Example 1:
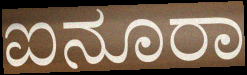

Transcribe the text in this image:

ಐನೂರಾ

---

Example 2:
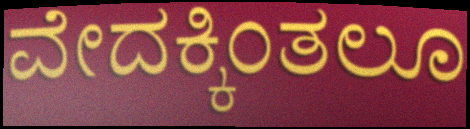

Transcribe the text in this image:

ವೇದಕ್ಕಿಂತಲೂ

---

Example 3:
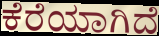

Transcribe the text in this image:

ಕೆರೆಯಾಗಿದೆ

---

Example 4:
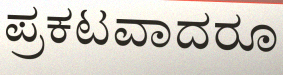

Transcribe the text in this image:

ಪ್ರಕಟವಾದರೂ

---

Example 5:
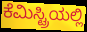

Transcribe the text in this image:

ಕೆಮಿಸ್ಟ್ರಿಯಲ್ಲಿ